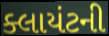
ક્લાયંટની